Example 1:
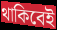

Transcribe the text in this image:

থাকিবেই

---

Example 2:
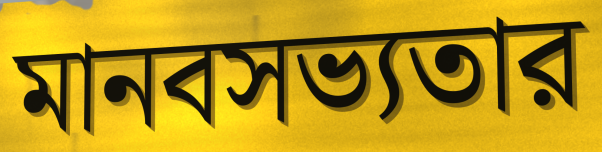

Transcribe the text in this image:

মানবসভ্যতার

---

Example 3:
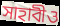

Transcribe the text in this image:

সাহাবীও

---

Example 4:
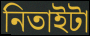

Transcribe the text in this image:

নিতাইটা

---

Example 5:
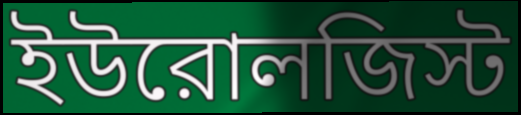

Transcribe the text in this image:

ইউরোলজিস্ট